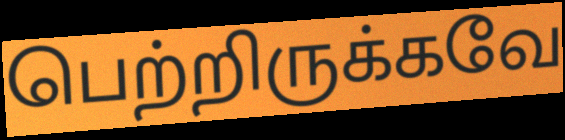
பெற்றிருக்கவே